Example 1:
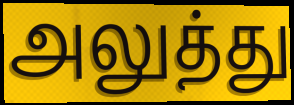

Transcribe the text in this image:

அலுத்து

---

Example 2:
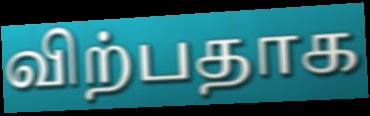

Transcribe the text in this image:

விற்பதாக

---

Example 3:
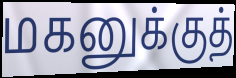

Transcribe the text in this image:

மகனுக்குத்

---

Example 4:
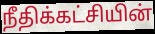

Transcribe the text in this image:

நீதிக்கட்சியின்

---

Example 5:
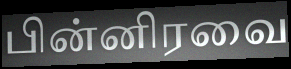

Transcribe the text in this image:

பின்னிரவை